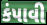
કંપાવી